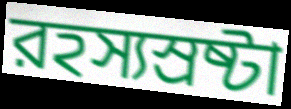
রহস্যস্রষ্টা